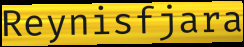
Reynisfjara